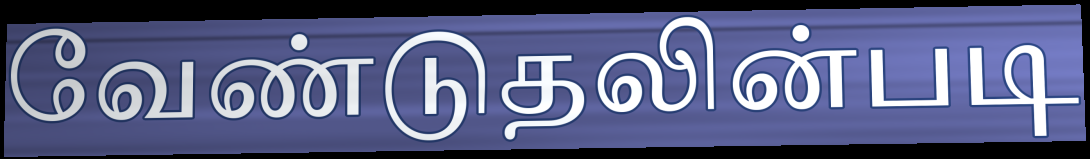
வேண்டுதலின்படி